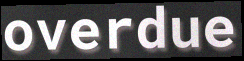
overdue